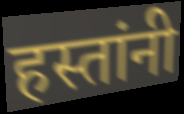
हस्तांनी